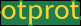
otprot